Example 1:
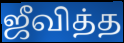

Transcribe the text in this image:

ஜீவித்த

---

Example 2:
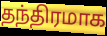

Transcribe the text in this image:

தந்திரமாக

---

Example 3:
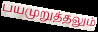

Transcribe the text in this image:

பயமுறுத்தலும்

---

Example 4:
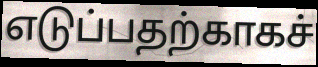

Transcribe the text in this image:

எடுப்பதற்காகச்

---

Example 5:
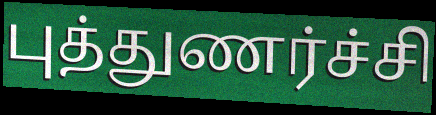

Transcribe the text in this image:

புத்துணர்ச்சி